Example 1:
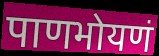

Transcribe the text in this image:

पाणभोयणं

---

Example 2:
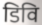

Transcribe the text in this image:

डिवि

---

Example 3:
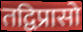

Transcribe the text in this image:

तद्विप्रासो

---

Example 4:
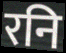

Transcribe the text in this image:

रनि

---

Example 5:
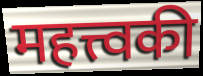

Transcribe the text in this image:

महत्त्वकी